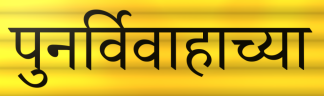
पुनर्विवाहाच्या